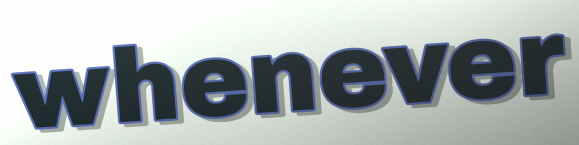
whenever